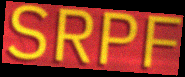
SRPF